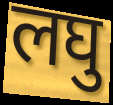
लघु